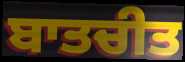
ਬਾਤਚੀਤ